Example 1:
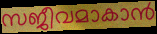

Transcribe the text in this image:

സജീവമാകാൻ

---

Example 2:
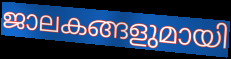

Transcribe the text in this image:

ജാലകങ്ങളുമായി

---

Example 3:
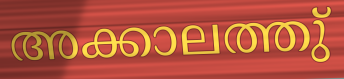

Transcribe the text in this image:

അക്കാലത്തു്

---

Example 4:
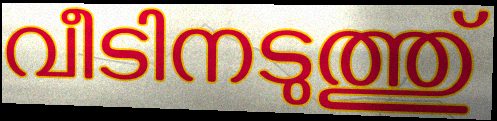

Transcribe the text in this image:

വീടിനടുത്തു്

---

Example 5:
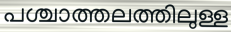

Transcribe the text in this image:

പശ്ചാത്തലത്തിലുള്ള